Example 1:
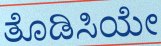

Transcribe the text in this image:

ತೊಡಿಸಿಯೇ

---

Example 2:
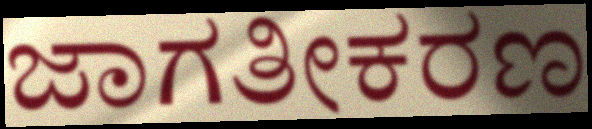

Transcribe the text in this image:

ಜಾಗತೀಕರಣ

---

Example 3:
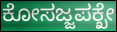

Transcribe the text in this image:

ಕೋಸಜ್ಜಪಕ್ಖೇ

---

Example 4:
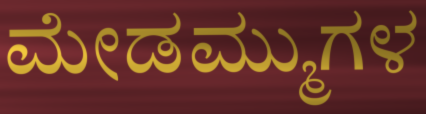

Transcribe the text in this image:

ಮೇಡಮ್ಮುಗಳ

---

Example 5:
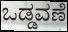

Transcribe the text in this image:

ಒಡ್ಡವಣೆ